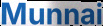
Munnai